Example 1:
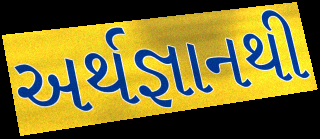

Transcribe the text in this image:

અર્થજ્ઞાનથી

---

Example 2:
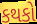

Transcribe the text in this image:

કથકો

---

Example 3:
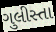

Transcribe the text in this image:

ગુલીસ્તા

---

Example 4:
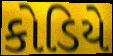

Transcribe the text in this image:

કોડિયે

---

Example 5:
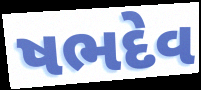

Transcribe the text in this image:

ષભદેવ